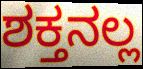
ಶಕ್ತನಲ್ಲ